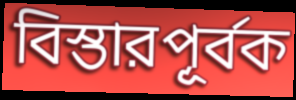
বিস্তারপূর্বক